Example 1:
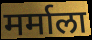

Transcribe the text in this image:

मर्माला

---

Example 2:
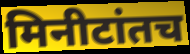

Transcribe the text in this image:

मिनीटांतच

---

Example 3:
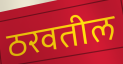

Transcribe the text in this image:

ठरवतील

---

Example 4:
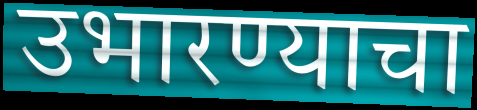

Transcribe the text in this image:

उभारण्याचा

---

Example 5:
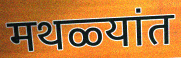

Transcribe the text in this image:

मथळ्यांत